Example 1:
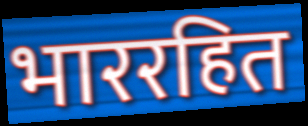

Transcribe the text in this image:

भाररहित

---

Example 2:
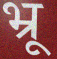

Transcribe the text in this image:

भ्रू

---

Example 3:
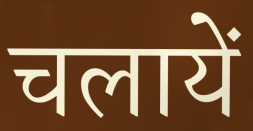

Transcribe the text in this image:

चलायें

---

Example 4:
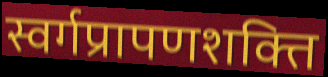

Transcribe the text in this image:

स्वर्गप्रापणशक्ति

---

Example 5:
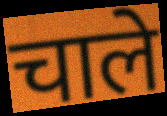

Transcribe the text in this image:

चाले